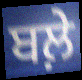
ਬਲ਼ੇ